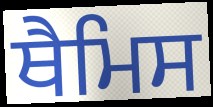
ਥੈਮਿਸ